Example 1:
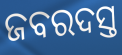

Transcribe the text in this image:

ଜବରଦସ୍ତ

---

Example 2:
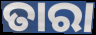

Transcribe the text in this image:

ତାରା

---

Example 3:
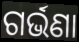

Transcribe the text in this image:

ଗର୍ଭଣା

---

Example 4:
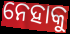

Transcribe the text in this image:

ନେହାକୁ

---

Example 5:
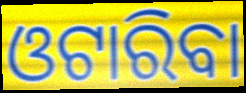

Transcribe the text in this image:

ଓଟାରିବା